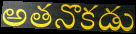
అతనొకడు